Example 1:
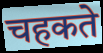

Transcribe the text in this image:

चहकते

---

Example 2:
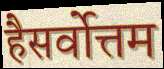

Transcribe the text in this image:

हैसर्वोत्तम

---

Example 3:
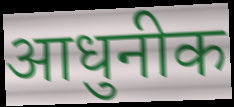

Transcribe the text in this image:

आधुनीक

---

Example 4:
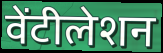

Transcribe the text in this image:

वेंटीलेशन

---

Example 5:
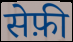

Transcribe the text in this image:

सेफ़ी